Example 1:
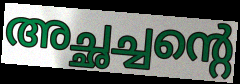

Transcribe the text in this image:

അച്ഛച്ചന്റെ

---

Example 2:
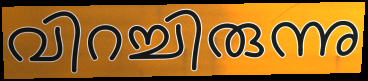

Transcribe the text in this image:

വിറച്ചിരുന്നു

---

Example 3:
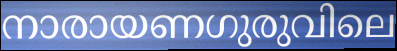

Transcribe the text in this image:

നാരായണഗുരുവിലെ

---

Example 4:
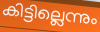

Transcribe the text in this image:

കിട്ടില്ലെന്നും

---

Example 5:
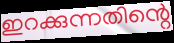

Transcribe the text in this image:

ഇറക്കുന്നതിന്റെ